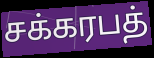
சக்கரபத்